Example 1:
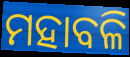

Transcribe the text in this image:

ମହାବଳି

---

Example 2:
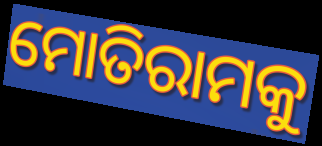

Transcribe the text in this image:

ମୋତିରାମକୁ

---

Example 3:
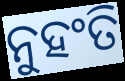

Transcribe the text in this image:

ନୁହଂତି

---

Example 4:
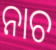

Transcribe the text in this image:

ନାଚ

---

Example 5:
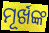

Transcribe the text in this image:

ମୂର୍ଖଙ୍କ